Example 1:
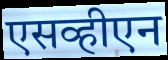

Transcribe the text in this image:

एसव्हीएन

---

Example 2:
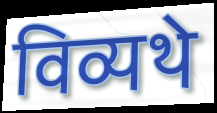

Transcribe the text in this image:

विव्यथे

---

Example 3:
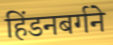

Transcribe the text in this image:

हिंडनबर्गने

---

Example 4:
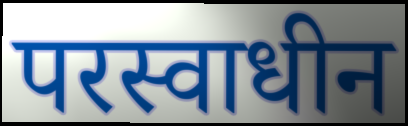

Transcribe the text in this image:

परस्वाधीन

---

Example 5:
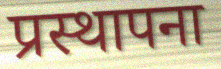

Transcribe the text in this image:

प्रस्थापना